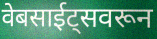
वेबसाईट्सवरून